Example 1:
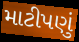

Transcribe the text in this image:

માટીપણું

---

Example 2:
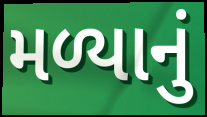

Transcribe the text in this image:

મળ્યાનું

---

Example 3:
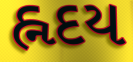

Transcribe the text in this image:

હ્નદય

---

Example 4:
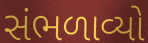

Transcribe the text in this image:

સંભળાવ્યો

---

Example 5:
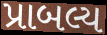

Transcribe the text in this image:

પ્રાબલ્ય